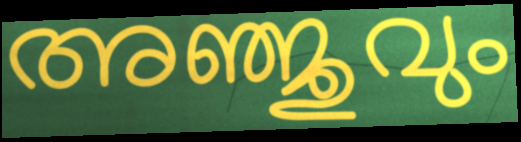
അഞ്ജുവും